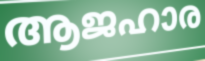
ആജഹാര